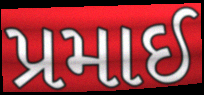
પ્રમાઈ